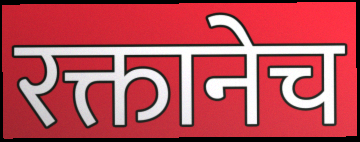
रक्तानेच